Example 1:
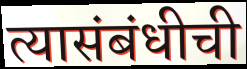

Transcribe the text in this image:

त्यासंबंधीची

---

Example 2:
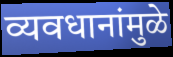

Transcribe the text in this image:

व्यवधानांमुळे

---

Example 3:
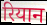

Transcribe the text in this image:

रियान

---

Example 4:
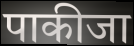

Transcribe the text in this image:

पाकीजा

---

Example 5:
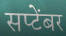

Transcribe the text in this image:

सप्टेंबर